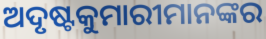
ଅଦୃଷ୍ଟକୁମାରୀମାନଙ୍କର